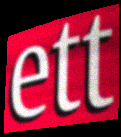
ett